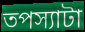
তপস্যাটা